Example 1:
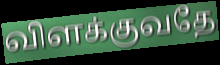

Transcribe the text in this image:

விளக்குவதே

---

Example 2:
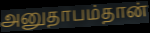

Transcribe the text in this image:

அனுதாபம்தான்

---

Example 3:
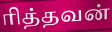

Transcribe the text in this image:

ரித்தவன்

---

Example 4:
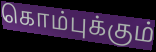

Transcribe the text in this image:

கொம்புக்கும்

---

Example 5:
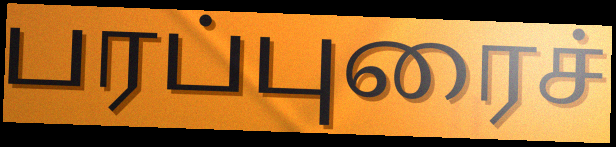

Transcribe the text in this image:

பரப்புரைச்